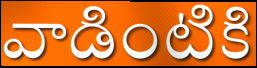
వాడింటికి